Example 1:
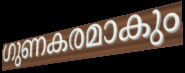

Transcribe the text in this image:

ഗുണകരമാകും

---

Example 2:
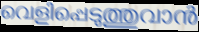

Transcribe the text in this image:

വെളിപ്പെടുത്തുവാൻ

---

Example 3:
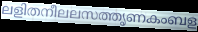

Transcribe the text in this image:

ലളിതനീലലസത്തൃണകംബള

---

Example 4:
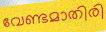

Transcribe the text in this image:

വേണ്ടമാതിരി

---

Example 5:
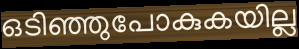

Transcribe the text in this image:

ഒടിഞ്ഞുപോകുകയില്ല